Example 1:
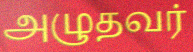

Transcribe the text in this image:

அழுதவர்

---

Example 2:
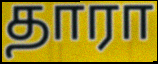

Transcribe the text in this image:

தாரா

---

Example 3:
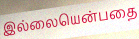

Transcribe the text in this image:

இல்லையென்பதை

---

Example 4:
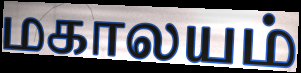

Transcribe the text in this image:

மகாலயம்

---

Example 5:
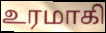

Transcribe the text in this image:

உரமாகி